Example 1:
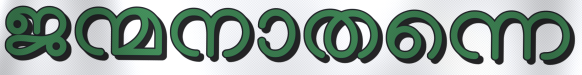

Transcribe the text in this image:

ജന്മനാതന്നെ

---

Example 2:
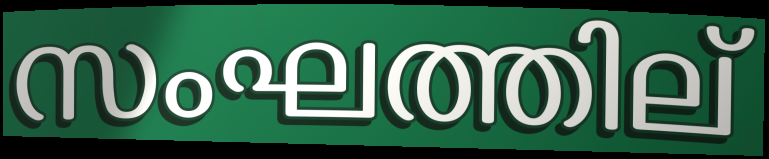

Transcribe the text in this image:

സംഘത്തില്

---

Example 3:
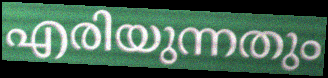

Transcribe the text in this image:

എരിയുന്നതും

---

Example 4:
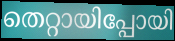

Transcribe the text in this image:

തെറ്റായിപ്പോയി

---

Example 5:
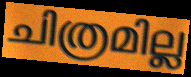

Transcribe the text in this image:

ചിത്രമില്ല